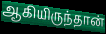
ஆகியிருந்தான்